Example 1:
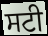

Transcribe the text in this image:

ਸਟੀ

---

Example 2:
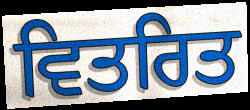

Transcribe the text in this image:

ਵਿਤਰਿਤ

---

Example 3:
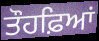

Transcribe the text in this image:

ਤੌਹਫ਼ਿਆਂ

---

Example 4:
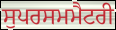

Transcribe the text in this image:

ਸੁਪਰਸਮਮੈਟਰੀ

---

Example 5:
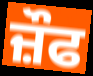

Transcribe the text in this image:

ਜ਼ੌਫ